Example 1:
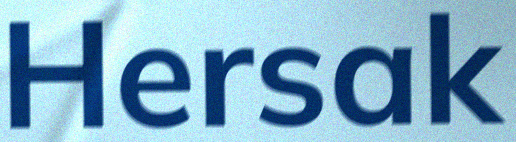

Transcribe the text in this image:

Hersak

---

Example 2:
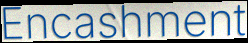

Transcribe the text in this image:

Encashment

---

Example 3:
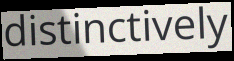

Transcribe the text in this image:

distinctively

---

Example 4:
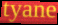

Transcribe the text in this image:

tyane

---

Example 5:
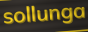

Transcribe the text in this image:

sollunga